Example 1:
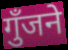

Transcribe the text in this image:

गुँजने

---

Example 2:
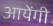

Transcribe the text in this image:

आयेंगी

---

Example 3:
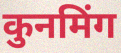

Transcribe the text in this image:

कुनमिंग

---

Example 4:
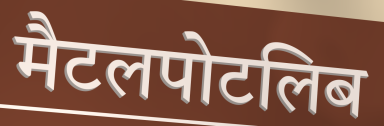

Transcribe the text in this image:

मैटलपोटलिब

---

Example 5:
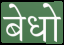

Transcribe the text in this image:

बेधो